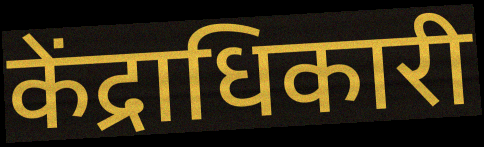
केंद्राधिकारी